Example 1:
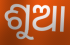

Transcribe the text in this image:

ଶୁଆ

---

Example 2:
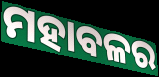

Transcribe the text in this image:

ମହାବଳର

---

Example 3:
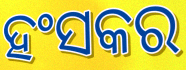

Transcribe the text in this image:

ହଂସକର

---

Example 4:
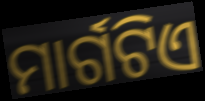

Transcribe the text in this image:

ମାର୍ଗଟିଏ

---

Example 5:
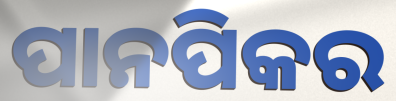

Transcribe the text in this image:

ପାନପିକର